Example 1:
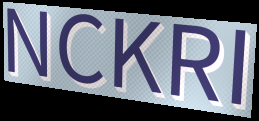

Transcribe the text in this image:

NCKRI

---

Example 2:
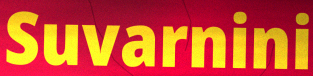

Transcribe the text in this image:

Suvarnini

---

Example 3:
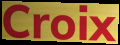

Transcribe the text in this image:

Croix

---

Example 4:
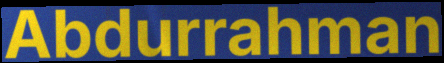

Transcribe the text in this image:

Abdurrahman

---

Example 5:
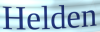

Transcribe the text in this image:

Helden